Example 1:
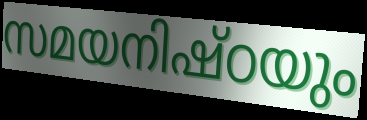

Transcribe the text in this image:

സമയനിഷ്ഠയും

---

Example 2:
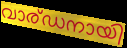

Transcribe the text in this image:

വാര്ഡനായി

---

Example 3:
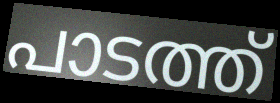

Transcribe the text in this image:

പാടത്ത്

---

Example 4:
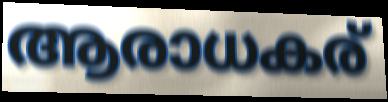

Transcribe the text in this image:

ആരാധകര്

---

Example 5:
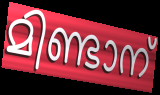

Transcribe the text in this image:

മിണ്ടാന്